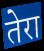
तेरा